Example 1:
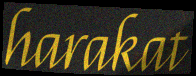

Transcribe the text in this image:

harakat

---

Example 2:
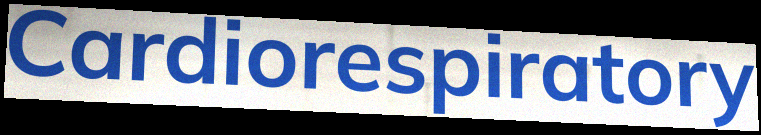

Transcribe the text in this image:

Cardiorespiratory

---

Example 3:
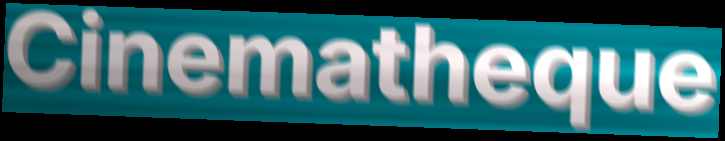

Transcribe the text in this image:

Cinematheque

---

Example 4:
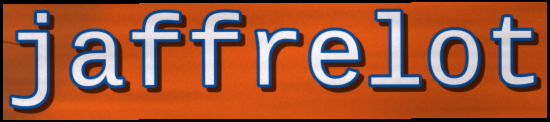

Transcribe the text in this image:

jaffrelot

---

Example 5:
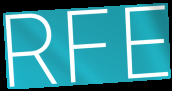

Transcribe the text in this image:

RFE